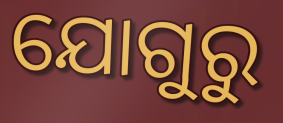
ଯୋଗୁରୁ